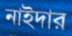
নাইদার